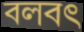
বলবৎ